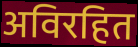
अविरहित